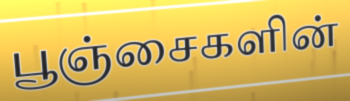
பூஞ்சைகளின்